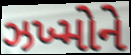
ઝખ્મોને